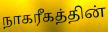
நாகரீகத்தின்